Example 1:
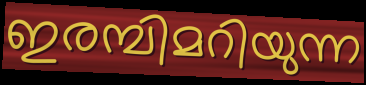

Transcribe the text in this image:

ഇരമ്പിമറിയുന്ന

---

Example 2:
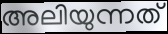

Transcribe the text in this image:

അലിയുന്നത്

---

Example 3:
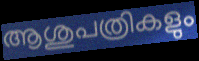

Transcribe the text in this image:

ആശുപത്രികളും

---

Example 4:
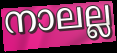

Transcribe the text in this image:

നാലല്ല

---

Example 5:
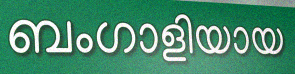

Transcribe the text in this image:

ബംഗാളിയായ